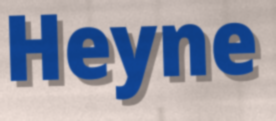
Heyne